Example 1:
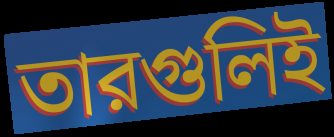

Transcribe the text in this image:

তারগুলিই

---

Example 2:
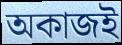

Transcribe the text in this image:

অকাজই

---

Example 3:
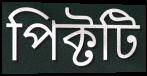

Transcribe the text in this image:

পিক্টটি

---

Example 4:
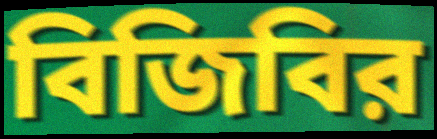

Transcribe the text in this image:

বিজিবির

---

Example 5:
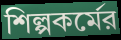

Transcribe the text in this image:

শিল্পকর্মের